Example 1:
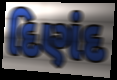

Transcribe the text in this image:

દિણંદ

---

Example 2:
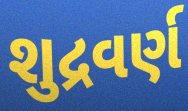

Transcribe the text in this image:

શુદ્રવર્ણ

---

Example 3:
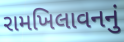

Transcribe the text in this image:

રામખિલાવનનું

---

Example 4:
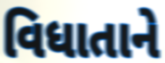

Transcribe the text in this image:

વિધાતાને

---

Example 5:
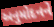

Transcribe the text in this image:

અનુમોદનને